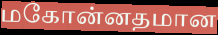
மகோன்னதமான